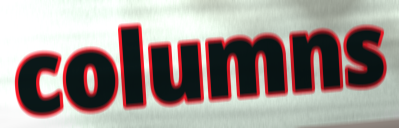
columns